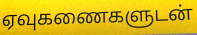
ஏவுகணைகளுடன்